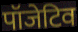
पॉजेटिव